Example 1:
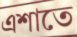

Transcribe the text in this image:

এশাতে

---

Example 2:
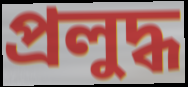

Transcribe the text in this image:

প্রলুদ্ধ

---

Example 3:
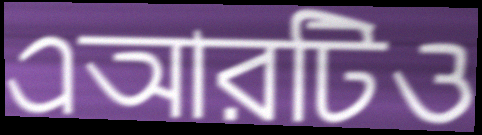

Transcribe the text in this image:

এআরটিও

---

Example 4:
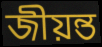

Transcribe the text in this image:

জীয়ন্ত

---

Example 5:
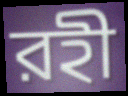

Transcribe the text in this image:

রহী